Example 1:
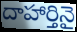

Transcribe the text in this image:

దాహార్తినై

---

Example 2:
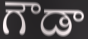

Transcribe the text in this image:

గౌడా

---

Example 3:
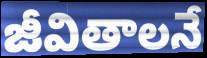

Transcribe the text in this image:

జీవితాలనే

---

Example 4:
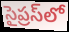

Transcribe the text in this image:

సైప్రస్‌లో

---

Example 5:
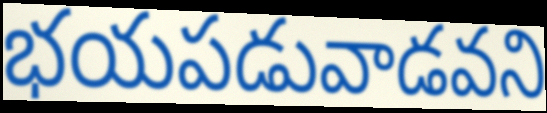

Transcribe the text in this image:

భయపడువాడవని